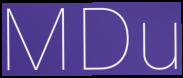
MDu